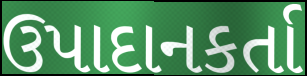
ઉપાદાનકર્તા